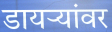
डायऱ्यांवर